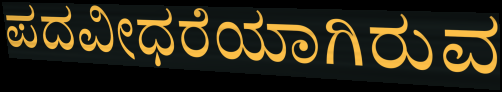
ಪದವೀಧರೆಯಾಗಿರುವ